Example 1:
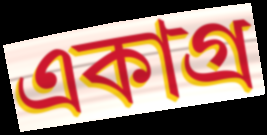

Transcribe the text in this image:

একাগ্র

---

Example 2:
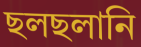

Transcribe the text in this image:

ছলছলানি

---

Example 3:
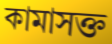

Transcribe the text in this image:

কামাসক্ত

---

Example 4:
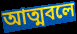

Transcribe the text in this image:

আত্মবলে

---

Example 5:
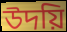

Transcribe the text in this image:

উদয়ি